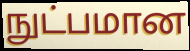
நுட்பமான